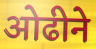
ओढीने